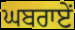
ਘਬਰਾਏਂ